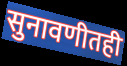
सुनावणीतही